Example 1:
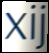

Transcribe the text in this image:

xij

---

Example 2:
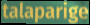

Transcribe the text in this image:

talaparige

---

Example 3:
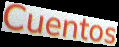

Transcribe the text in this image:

Cuentos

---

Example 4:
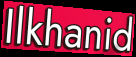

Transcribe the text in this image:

Ilkhanid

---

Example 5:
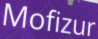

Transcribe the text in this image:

Mofizur